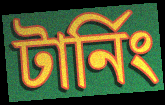
টাৰ্নিং